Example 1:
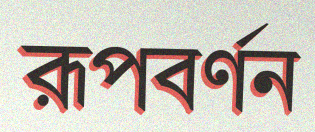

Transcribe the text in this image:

রূপবর্ণন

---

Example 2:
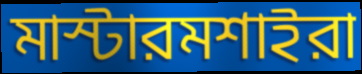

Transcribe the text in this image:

মাস্টারমশাইরা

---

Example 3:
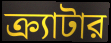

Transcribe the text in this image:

ক্র্যাটার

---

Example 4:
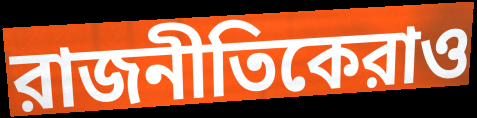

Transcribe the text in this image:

রাজনীতিকেরাও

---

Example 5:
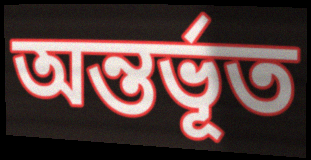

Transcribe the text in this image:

অন্তর্ভূত